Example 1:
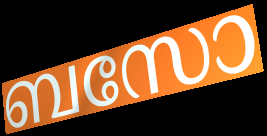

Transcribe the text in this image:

ബസോ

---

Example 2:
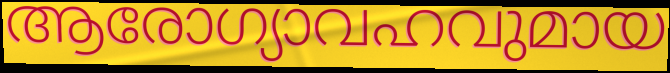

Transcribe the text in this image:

ആരോഗ്യാവഹവുമായ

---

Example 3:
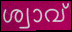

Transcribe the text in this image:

ശ്വാവ്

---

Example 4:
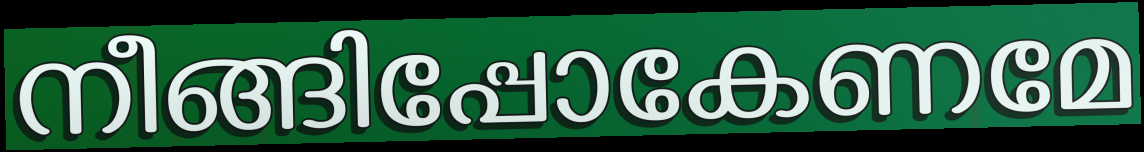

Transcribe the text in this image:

നീങ്ങിപ്പോകേണമേ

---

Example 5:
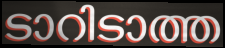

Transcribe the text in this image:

ടാറിടാത്ത